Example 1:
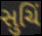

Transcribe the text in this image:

સુચિં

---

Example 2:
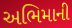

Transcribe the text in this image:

અભિમાની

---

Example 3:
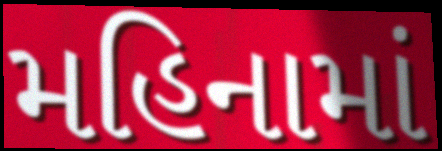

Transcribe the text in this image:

મહિનામાં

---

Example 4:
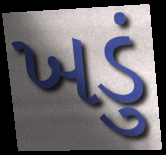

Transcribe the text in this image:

ખડું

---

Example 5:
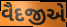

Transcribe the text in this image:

વૈદજીએ